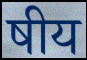
षीय